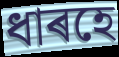
ধাৰহে